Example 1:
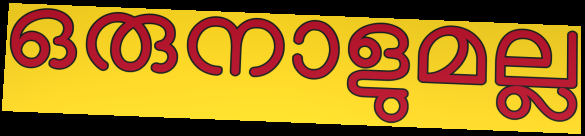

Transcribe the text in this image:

ഒരുനാളുമല്ല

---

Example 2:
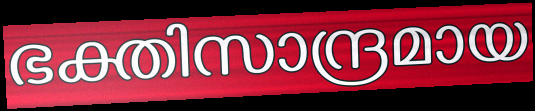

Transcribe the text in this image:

ഭക്തിസാന്ദ്രമായ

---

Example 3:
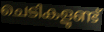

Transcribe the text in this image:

ചെടികളുണ്ട്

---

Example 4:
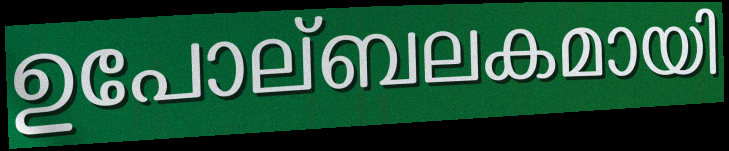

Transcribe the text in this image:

ഉപോല്ബലകമായി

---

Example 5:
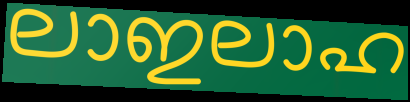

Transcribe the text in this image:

ലാഇലാഹ